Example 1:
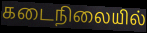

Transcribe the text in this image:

கடைநிலையில்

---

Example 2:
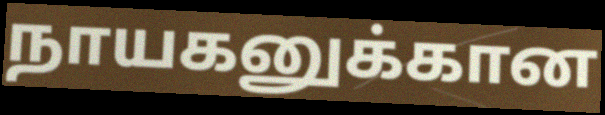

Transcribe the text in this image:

நாயகனுக்கான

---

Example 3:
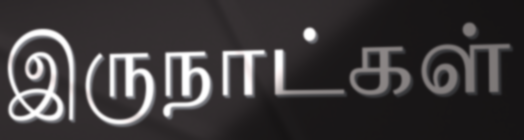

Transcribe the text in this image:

இருநாட்கள்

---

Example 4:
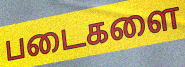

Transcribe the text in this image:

படைகளை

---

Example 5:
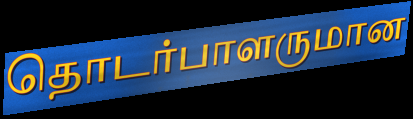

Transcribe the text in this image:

தொடர்பாளருமான